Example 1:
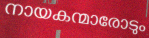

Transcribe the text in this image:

നായകന്മാരോടും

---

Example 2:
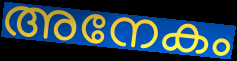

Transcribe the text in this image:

അനേകം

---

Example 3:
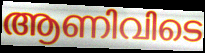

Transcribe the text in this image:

ആണിവിടെ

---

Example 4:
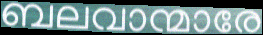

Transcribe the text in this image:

ബലവാന്മാരേ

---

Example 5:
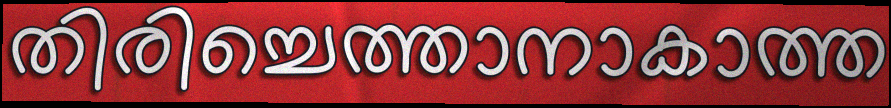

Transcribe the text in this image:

തിരിച്ചെത്താനാകാത്ത